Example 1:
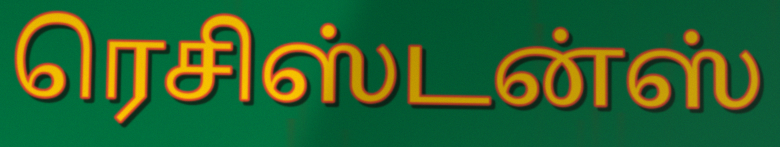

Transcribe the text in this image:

ரெசிஸ்டன்ஸ்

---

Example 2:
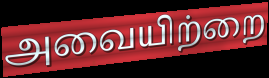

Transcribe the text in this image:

அவையிற்றை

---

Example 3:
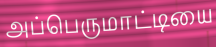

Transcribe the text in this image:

அப்பெருமாட்டியை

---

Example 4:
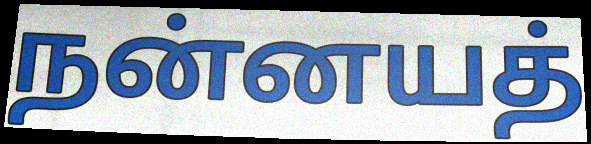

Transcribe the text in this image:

நன்னயத்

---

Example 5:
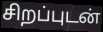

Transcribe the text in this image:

சிறப்புடன்